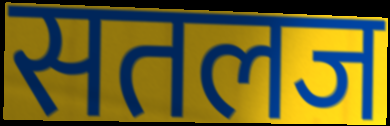
सतलज